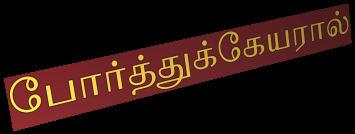
போர்த்துக்கேயரால்